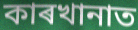
কাৰখানাত